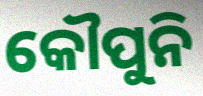
କୌପୁନି